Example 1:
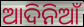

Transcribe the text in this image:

ଆଦିନିଆଁ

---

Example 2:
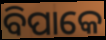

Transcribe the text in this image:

ବିପାକେ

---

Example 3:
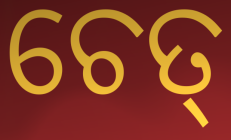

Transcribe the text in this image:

ଚେତ୍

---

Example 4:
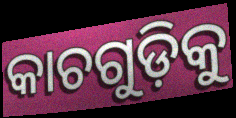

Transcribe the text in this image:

କାଚଗୁଡ଼ିକୁ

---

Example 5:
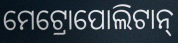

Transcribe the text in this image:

ମେଟ୍ରୋପୋଲିଟାନ୍